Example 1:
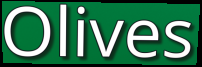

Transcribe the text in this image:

Olives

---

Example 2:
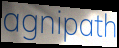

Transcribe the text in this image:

agnipath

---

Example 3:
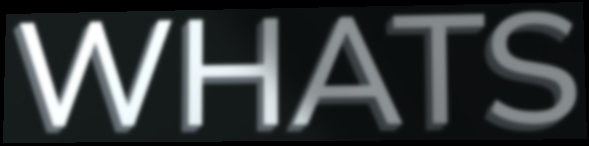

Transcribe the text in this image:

WHATS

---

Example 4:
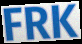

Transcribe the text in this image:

FRK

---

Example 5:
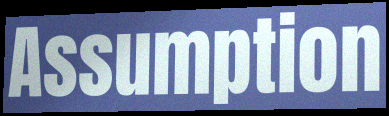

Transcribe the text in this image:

Assumption